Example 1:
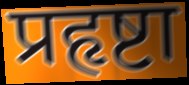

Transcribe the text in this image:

प्रहृष्टा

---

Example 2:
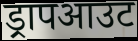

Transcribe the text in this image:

ड्रापआउट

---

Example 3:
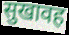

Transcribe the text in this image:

सुखावह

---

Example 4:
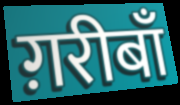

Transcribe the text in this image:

ग़रीबाँ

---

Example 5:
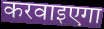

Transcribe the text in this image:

करवाइएगा